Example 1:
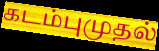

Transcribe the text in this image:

கடம்புமுதல்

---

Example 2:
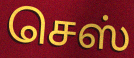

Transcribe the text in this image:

செஸ்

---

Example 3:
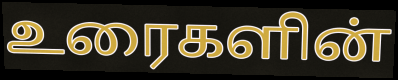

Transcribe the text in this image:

உரைகளின்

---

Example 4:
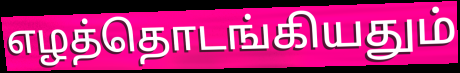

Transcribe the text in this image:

எழத்தொடங்கியதும்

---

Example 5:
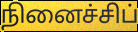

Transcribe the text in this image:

நினைச்சிப்